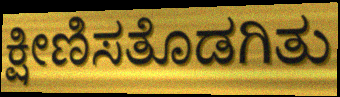
ಕ್ಷೀಣಿಸತೊಡಗಿತು